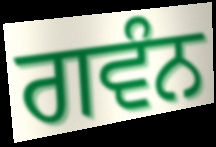
ਗਵੰਨ